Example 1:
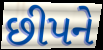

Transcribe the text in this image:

છીપને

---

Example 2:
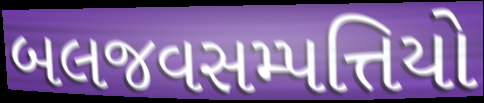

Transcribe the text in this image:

બલજવસમ્પત્તિયો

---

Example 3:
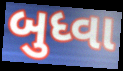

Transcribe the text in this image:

બુધ્વા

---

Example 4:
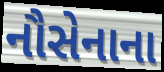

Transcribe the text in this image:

નૌસેનાના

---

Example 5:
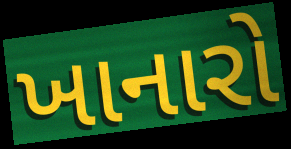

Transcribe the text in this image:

ખાનારો